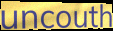
uncouth